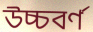
উচ্চবৰ্ণ